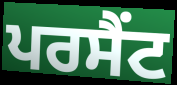
ਪਰਸੈਂਟ